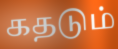
கதடும்